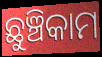
ଛୁଞ୍ଚିକାମ